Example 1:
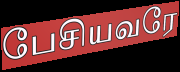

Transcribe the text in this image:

பேசியவரே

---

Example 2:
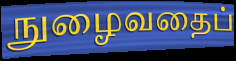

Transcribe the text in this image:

நுழைவதைப்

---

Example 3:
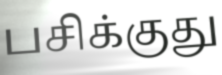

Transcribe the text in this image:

பசிக்குது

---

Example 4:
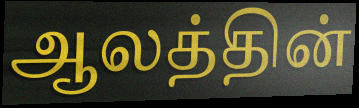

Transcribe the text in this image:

ஆலத்தின்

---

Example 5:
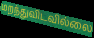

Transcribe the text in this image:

மறந்துவிடவில்லை